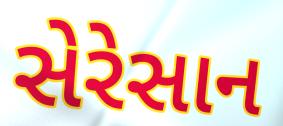
સેરેસાન